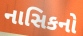
નાસિકનો